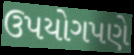
ઉપયોગપણે